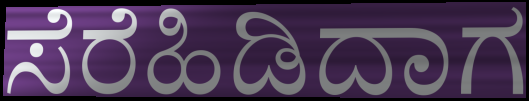
ಸೆರೆಹಿಡಿದಾಗ